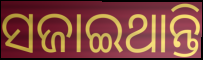
ସଜାଇଥାନ୍ତି